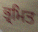
ਭ੍ਰਮਿਤ